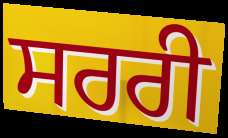
ਸਰਰੀ